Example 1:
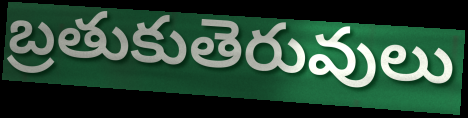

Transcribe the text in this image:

బ్రతుకుతెరువులు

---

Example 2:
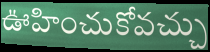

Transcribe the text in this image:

ఊహించుకోవచ్చు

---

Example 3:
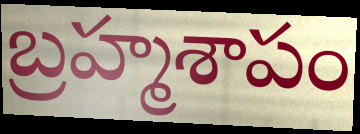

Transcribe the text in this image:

బ్రహ్మశాపం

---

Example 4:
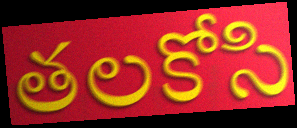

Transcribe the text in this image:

తలకోసి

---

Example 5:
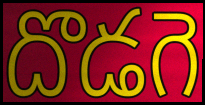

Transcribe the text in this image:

దొడగె